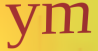
ym